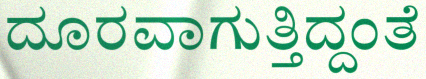
ದೂರವಾಗುತ್ತಿದ್ದಂತೆ